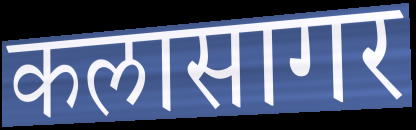
कलासागर